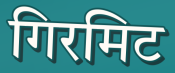
गिरमिट